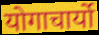
योगाचार्यो